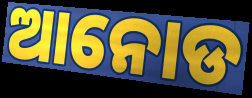
ଆନୋଡ